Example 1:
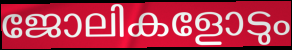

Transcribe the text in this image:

ജോലികളോടും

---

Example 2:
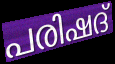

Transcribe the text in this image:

പരിഷദ്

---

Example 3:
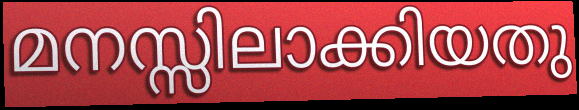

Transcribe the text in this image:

മനസ്സിലാക്കിയതു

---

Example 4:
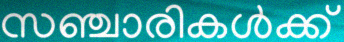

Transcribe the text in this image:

സഞ്ചാരികൾക്ക്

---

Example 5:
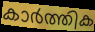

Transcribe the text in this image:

കാർത്തിക